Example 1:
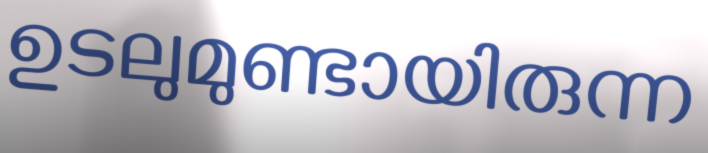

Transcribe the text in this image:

ഉടലുമുണ്ടായിരുന്ന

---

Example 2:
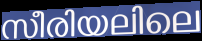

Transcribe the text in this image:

സീരിയലിലെ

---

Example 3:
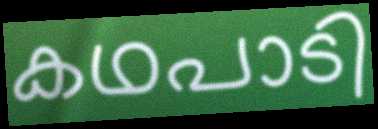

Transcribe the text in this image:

കഥപാടി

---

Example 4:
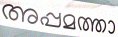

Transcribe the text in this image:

അപ്പമത്താ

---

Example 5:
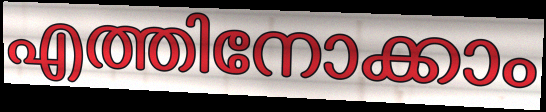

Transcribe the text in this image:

എത്തിനോക്കാം